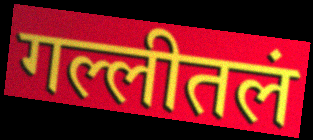
गल्लीतलं